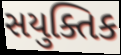
સયુક્તિક